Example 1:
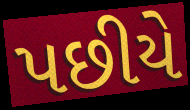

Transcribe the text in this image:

પછીયે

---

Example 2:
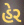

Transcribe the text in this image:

હેર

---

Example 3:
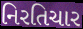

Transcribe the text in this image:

નિરતિચાર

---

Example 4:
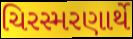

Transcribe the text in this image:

ચિરસ્મરણાર્થે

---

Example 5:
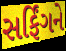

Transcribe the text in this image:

સર્ફિંગને